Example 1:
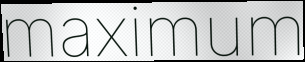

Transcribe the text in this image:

maximum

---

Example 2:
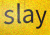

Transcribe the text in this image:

slay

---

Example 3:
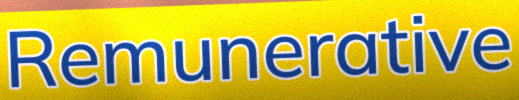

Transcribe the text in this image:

Remunerative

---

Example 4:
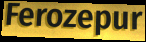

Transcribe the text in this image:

Ferozepur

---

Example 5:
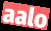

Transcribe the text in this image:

aalo